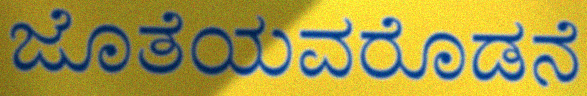
ಜೊತೆಯವರೊಡನೆ